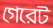
গেরেট